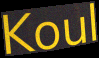
Koul